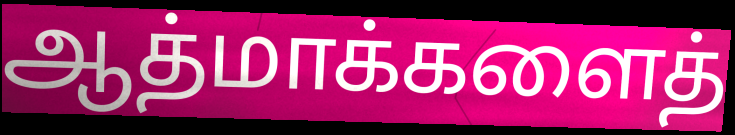
ஆத்மாக்களைத்